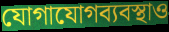
যোগাযোগব্যবস্থাও